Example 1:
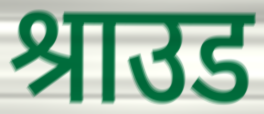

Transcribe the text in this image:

श्राउड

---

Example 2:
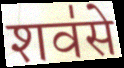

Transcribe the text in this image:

शव॑से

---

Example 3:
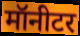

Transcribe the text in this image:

मॉनीटर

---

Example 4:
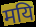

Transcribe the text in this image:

मयि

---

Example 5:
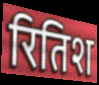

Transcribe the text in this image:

रितिश